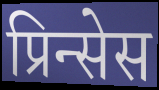
प्रिन्सेस